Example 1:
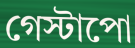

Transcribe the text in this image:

গেস্টাপো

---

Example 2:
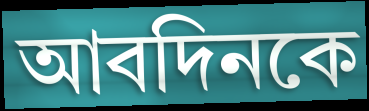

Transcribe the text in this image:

আবদিনকে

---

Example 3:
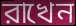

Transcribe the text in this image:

রাখেন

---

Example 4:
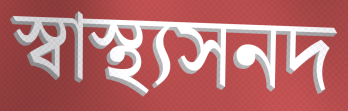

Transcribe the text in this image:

স্বাস্থ্যসনদ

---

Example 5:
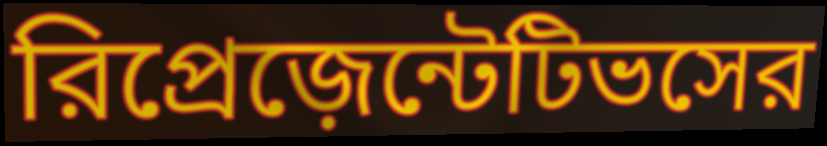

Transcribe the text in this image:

রিপ্রেজ়েন্টেটিভসের